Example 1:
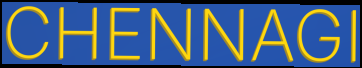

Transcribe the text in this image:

CHENNAGI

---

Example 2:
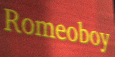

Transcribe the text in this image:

Romeoboy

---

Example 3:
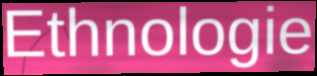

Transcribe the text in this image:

Ethnologie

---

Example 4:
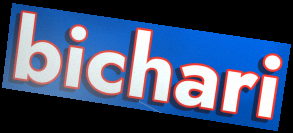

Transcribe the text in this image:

bichari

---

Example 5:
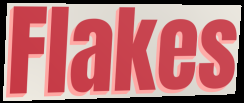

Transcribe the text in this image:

Flakes